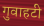
गुवाहटी